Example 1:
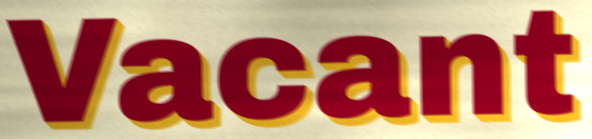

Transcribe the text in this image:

Vacant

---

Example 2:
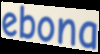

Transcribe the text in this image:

ebona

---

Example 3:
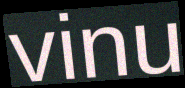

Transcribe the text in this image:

vinu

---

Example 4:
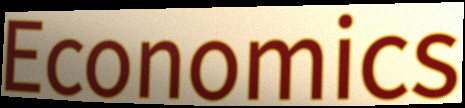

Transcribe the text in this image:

Economics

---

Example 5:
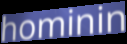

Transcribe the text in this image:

hominin